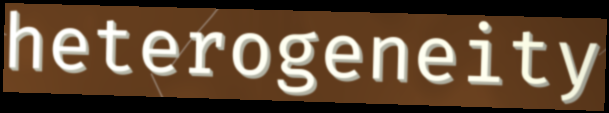
heterogeneity